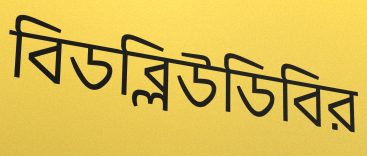
বিডব্লিউডিবির